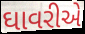
ઘાવરીએ